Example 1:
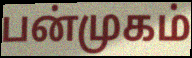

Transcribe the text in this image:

பன்முகம்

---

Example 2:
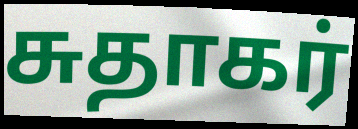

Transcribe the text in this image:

சுதாகர்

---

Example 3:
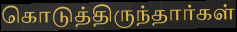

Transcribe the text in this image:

கொடுத்திருந்தார்கள்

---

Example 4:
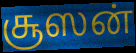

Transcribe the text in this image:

சூஸன்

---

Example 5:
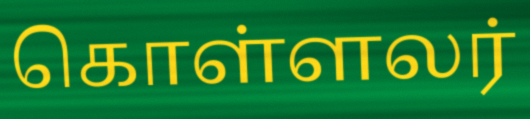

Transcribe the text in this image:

கொள்ளலர்